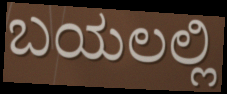
ಬಯಲಲ್ಲಿ